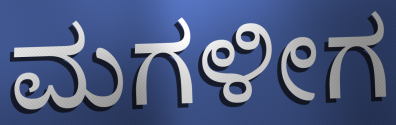
ಮಗಳೀಗ